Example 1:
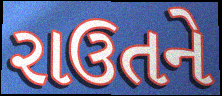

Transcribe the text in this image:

રાઉતને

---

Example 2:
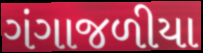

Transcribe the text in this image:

ગંગાજળીયા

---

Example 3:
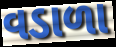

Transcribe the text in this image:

વડાળા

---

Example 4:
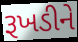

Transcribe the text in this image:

રૂખડીને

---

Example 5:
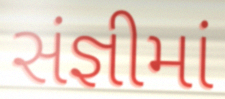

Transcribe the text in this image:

સંજ્ઞીમાં